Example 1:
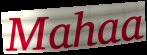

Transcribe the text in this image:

Mahaa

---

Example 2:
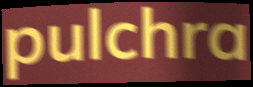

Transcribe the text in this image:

pulchra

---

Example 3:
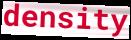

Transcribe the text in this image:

density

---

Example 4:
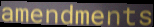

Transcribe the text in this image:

amendments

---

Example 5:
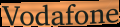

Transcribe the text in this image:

Vodafone